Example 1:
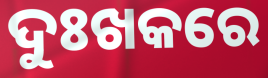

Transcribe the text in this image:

ଦୁଃଖକରେ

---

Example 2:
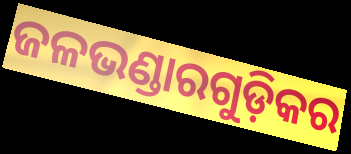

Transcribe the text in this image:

ଜଳଭଣ୍ଡାରଗୁଡ଼ିକର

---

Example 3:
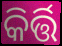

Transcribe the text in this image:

କିର୍ତ୍ତି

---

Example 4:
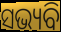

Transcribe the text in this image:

ସଭ୍ୟବି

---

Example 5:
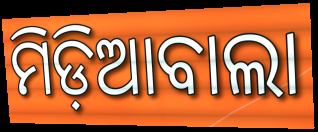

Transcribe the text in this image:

ମିଡ଼ିଆବାଲା